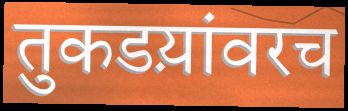
तुकडय़ांवरच